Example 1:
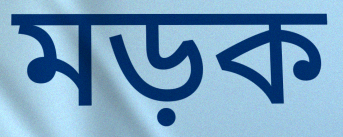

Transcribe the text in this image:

মড়ক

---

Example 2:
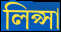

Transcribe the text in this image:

লিপ্সা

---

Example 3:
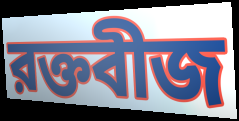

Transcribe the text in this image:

রক্তবীজ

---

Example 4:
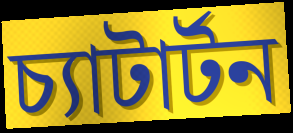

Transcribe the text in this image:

চ্যাটার্টন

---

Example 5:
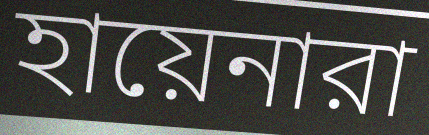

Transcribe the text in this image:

হায়েনারা